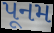
પૂનમ